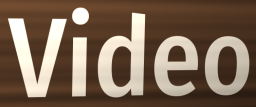
Video